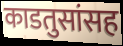
काडतुसांसह